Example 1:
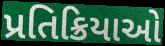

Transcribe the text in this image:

પ્રતિક્રિયાઓ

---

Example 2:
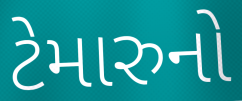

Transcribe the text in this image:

ટેમારુનો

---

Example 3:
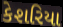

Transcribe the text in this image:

કેશરિયા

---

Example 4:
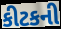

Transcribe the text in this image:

કીટકની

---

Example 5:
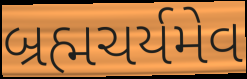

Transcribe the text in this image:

બ્રહ્મચર્યમેવ